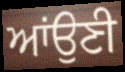
ਆਂਉਣੀ